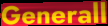
Generall